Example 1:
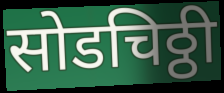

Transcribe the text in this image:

सोडचिठ्ठी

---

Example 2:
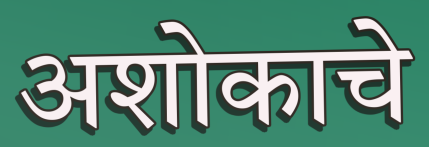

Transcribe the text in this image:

अशोकाचे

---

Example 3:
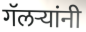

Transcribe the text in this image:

गॅलऱ्यांनी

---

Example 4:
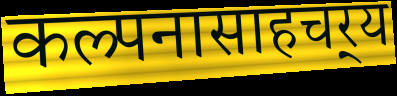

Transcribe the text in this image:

कल्पनासाहचर्य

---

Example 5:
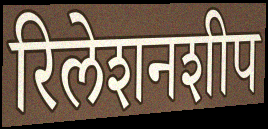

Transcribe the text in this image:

रिलेशनशीप